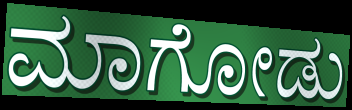
ಮಾಗೋಡು